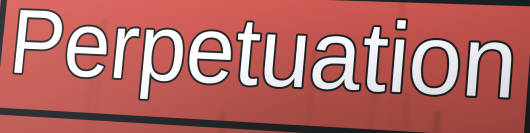
Perpetuation